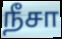
நீசா